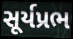
સૂર્યપ્રભ